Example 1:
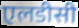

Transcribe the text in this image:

एलडीसी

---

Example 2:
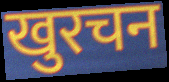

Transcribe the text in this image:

खुरचन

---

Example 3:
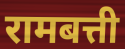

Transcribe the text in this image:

रामबत्ती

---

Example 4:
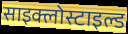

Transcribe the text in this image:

साइक्लोस्टाइल्ड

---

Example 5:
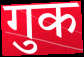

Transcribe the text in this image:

गुक